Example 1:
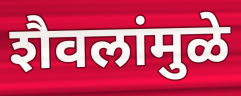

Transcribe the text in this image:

शैवलांमुळे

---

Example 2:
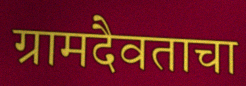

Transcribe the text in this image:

ग्रामदैवताचा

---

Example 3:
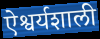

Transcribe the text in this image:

ऐश्वर्यशाली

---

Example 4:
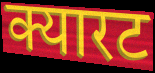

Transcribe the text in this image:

क्यारट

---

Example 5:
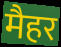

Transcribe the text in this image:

मैहर